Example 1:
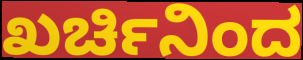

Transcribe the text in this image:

ಖರ್ಚಿನಿಂದ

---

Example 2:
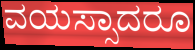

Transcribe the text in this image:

ವಯಸ್ಸಾದರೂ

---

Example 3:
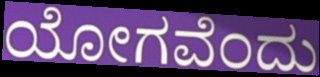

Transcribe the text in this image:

ಯೋಗವೆಂದು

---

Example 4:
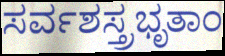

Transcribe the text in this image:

ಸರ್ವಶಸ್ತ್ರಭೃತಾಂ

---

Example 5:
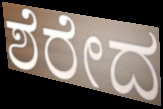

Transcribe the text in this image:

ಶೆರೇದ